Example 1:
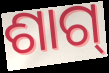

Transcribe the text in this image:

ଶାଗ୍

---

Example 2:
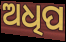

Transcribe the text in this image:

ଅଧିପ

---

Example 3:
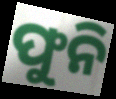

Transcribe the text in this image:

ଫୁନି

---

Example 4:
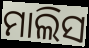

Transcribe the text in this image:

ମାଲିସ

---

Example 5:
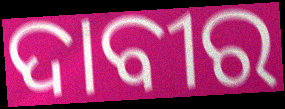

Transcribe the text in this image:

ଦାବୀର